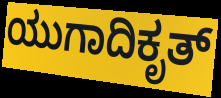
ಯುಗಾದಿಕೃತ್